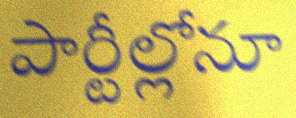
పార్టీల్లోనూ